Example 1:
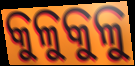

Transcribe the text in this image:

କୁଳୁକୁଳୁ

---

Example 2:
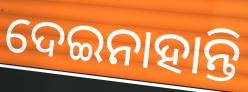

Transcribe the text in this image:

ଦେଇନାହାନ୍ତି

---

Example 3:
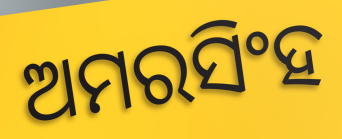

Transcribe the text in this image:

ଅମରସିଂହ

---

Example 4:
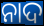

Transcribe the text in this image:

ନାଦ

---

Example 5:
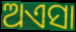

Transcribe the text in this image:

ଅଏସା